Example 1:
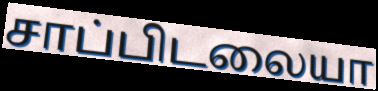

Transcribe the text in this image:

சாப்பிடலையா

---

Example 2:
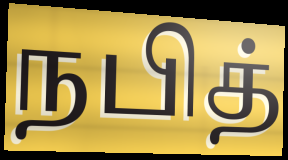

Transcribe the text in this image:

நபித்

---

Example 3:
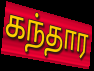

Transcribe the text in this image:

கந்தார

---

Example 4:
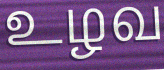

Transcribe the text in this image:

உழவ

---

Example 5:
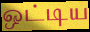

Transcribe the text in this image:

ஒட்டிய